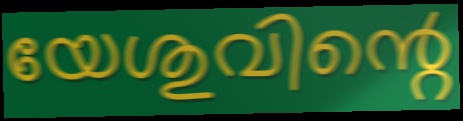
യേശുവിന്റെ